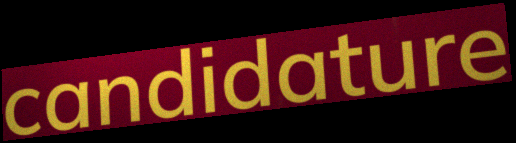
candidature